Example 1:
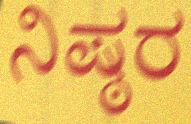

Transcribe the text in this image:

ನಿಷ್ಠರ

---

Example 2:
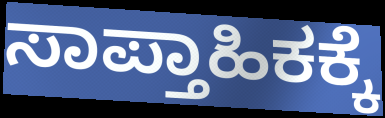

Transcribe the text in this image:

ಸಾಪ್ತಾಹಿಕಕ್ಕೆ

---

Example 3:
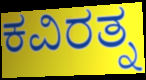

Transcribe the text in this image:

ಕವಿರತ್ನ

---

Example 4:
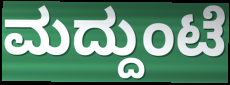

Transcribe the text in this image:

ಮದ್ದುಂಟೆ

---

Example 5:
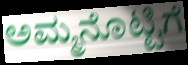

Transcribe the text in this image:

ಅಮ್ಮನೊಟ್ಟಿಗೆ